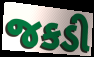
જકડી